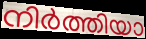
നിർത്തിയാ